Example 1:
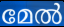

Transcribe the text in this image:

മേൽ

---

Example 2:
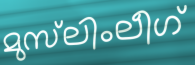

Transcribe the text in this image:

മുസ്‌ലിംലീഗ്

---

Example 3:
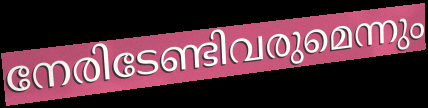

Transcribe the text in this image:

നേരിടേണ്ടിവരുമെന്നും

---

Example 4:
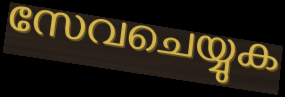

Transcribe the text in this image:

സേവചെയ്യുക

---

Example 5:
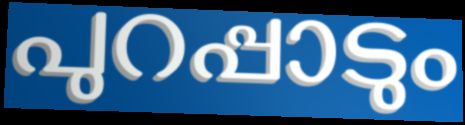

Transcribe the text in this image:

പുറപ്പാടും